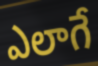
ఎలాగే